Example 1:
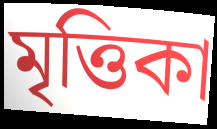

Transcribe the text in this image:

মৃত্তিকা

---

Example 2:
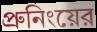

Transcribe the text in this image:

প্রুনিংয়ের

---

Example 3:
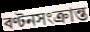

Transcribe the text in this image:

বণ্টনসংক্রান্ত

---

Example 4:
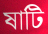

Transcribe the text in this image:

ষাটি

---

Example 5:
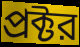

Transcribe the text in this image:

প্রক্টর